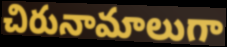
చిరునామాలుగా